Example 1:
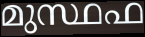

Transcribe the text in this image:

മുസ്ഥഫ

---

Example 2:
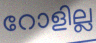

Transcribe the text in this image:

റോളില്ല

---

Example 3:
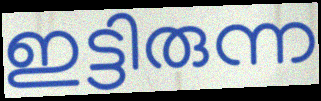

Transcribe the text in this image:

ഇട്ടിരുന്ന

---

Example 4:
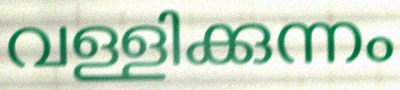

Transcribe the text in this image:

വള്ളിക്കുന്നം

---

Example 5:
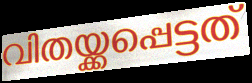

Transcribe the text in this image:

വിതയ്ക്കപ്പെട്ടത്